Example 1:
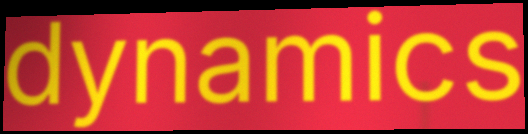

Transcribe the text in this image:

dynamics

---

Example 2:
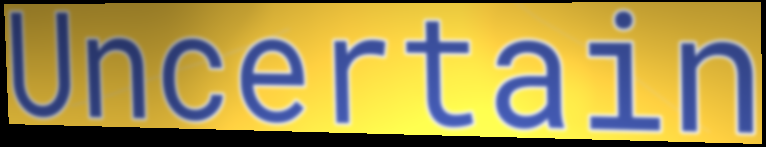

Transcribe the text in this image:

Uncertain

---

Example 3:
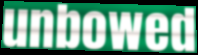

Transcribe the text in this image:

unbowed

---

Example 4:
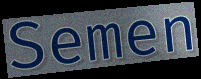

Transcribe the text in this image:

Semen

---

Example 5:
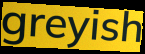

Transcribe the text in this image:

greyish